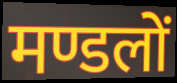
मण्डलों